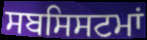
ਸਬਸਿਸਟਮਾਂ